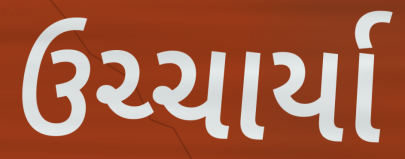
ઉચ્ચાર્યા